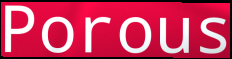
Porous